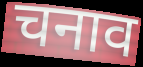
चनाव